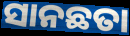
ସାନଛତା